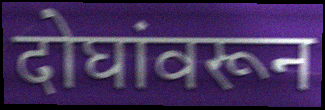
दोघांवरून